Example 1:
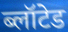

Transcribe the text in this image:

ब्लॉटेड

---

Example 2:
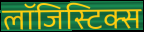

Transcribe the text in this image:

लॉजिस्टिक्स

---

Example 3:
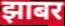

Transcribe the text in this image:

झाबर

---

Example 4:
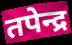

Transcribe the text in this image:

तपेन्द्र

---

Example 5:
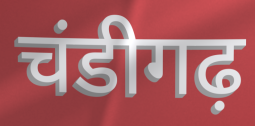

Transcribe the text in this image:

चंडीगढ़